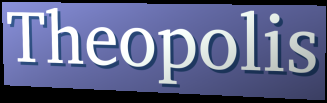
Theopolis